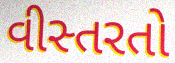
વીસ્તરતો